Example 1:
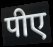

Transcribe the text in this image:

पीए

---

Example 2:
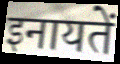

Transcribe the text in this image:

इनायतें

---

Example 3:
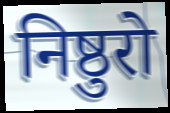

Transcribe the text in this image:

निष्ठुरो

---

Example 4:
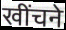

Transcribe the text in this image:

खींचने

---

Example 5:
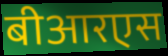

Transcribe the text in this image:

बीआरएस